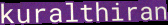
kuralthiran